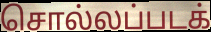
சொல்லப்படக்